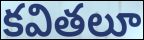
కవితలూ